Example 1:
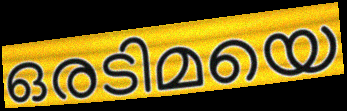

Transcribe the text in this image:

ഒരടിമയെ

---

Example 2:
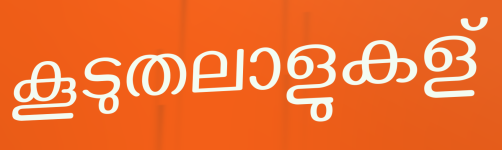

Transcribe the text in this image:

കൂടുതലാളുകള്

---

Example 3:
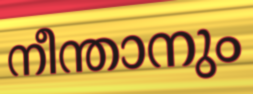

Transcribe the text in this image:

നീന്താനും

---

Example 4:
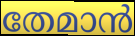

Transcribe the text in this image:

തേമാൻ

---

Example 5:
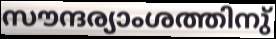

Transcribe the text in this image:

സൗന്ദര്യാംശത്തിനു്